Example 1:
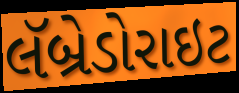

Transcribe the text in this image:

લૅબ્રેડોરાઇટ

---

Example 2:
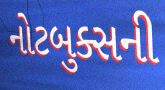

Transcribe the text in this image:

નોટબુક્સની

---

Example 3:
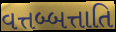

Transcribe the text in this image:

વત્તબ્બત્તાતિ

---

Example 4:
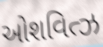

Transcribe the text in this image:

ઓશવિત્ઝ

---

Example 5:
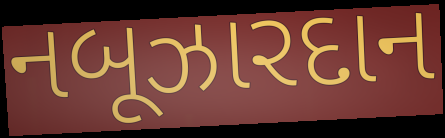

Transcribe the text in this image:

નબૂઝારદાન